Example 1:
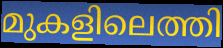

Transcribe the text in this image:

മുകളിലെത്തി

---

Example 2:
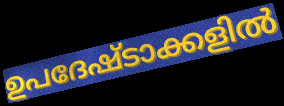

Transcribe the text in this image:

ഉപദേഷ്ടാക്കളിൽ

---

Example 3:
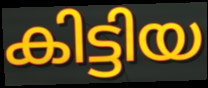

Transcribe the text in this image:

കിട്ടിയ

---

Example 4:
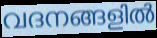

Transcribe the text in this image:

വദനങ്ങളിൽ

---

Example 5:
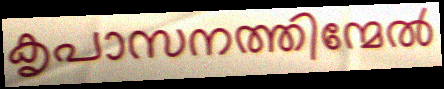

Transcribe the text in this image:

കൃപാസനത്തിന്മേൽ